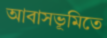
আবাসভূমিতে